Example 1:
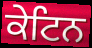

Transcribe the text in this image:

ਕੇਟਿਨ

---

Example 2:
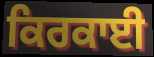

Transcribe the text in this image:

ਕਿਰਕਾਈ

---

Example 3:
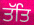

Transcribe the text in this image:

ਤੱਤਿ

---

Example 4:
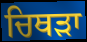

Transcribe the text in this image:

ਚਿਥੜਾ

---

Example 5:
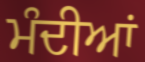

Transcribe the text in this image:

ਮੰਦੀਆਂ